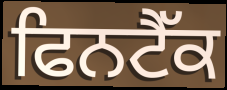
ਫਿਨਟੈੱਕ